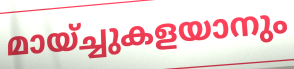
മായ്ച്ചുകളയാനും